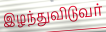
இழந்துவிடுவர்